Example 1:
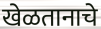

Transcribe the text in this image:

खेळतानाचे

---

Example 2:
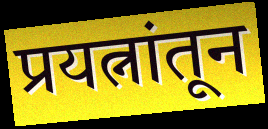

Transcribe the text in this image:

प्रयत्नांतून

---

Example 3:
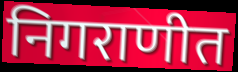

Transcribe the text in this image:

निगराणीत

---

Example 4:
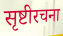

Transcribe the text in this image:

सृष्टीरचना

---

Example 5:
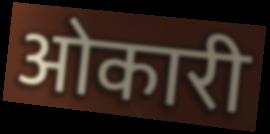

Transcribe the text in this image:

ओकारी